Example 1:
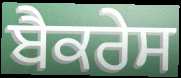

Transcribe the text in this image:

ਬੈਕਰੇਸ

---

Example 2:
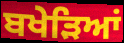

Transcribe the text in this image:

ਬਖੇੜਿਆਂ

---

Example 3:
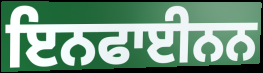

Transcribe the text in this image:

ਇਨਫਾਈਨਨ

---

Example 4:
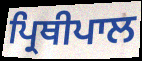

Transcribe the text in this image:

ਪ੍ਰਿਥੀਪਾਲ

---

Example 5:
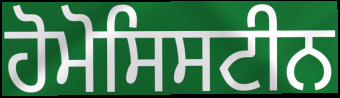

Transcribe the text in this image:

ਹੋਮੋਸਿਸਟੀਨ